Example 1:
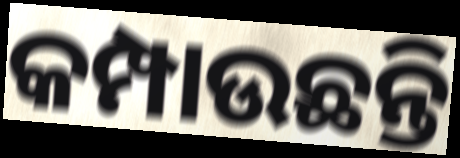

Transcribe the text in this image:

କମ୍ପାଉଛନ୍ତି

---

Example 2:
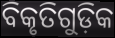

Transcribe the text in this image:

ବିକୃତିଗୁଡ଼ିକ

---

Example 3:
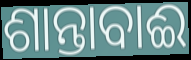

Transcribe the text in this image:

ଶାନ୍ତାବାଈ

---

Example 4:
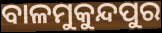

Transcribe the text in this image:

ବାଳମୁକୁନ୍ଦପୁର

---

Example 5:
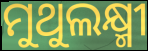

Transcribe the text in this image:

ମୁଥୁଲକ୍ଷ୍ମୀ